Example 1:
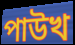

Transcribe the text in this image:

পাউখ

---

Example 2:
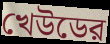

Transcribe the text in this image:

খেউডের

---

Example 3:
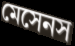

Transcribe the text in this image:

মেসেনস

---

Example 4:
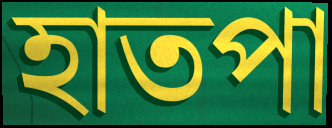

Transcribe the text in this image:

হাতপা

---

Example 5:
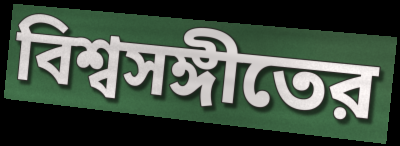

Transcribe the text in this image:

বিশ্বসঙ্গীতের